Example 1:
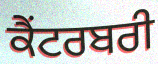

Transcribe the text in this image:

ਕੈਂਟਰਬਰੀ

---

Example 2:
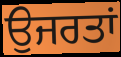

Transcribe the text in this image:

ਉਜਰਤਾਂ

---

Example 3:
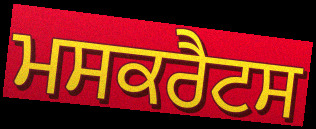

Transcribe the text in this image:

ਮਸਕਰੈਟਸ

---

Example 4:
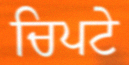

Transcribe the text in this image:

ਚਿਪਟੇ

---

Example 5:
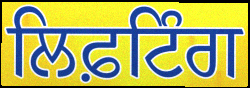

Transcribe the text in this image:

ਲਿਫ਼ਟਿੰਗ